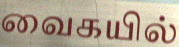
வைகயில்